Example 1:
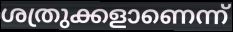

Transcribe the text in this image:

ശത്രുക്കളാണെന്ന്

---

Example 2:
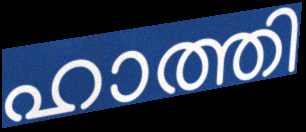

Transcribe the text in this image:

ഹാത്തി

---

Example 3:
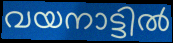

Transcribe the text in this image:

വയനാട്ടിൽ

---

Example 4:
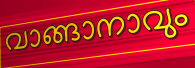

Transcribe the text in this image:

വാങ്ങാനാവും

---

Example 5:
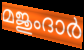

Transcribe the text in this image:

മജുംദാർ